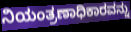
ನಿಯಂತ್ರಣಾಧಿಕಾರವನ್ನು